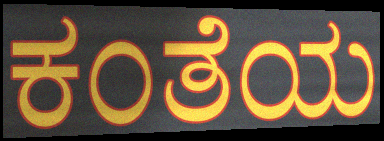
ಕಂತೆಯ